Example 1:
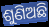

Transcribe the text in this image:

ଶୁଣିଅଛି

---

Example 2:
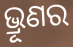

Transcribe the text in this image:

ଭ୍ରୂଣର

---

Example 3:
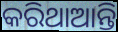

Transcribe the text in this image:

କରିଥାଆନ୍ତି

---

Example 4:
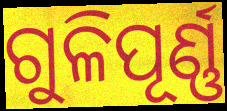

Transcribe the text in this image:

ଗୁଳିପୂର୍ଣ୍ଣ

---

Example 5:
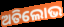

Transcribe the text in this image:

ଅତିଲୋଭ